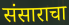
संसाराचा